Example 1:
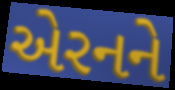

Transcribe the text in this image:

એરનને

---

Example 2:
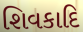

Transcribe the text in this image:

શિવકાદિ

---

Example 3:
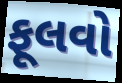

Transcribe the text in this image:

ફૂલવો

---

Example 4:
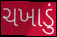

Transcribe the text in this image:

ચખાડું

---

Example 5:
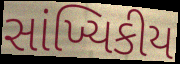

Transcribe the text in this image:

સાંખ્યિકીય